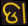
ଡା